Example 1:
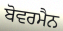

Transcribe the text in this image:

ਬੋਵਰਮੈਨ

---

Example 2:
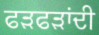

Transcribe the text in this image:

ਫੜਫੜਾਂਦੀ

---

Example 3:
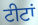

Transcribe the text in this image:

ਟੀਟਾਂ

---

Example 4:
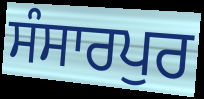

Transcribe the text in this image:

ਸੰਸਾਰਪੁਰ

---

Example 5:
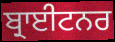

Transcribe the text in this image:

ਬ੍ਰਾਈਟਨਰ